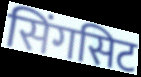
सिंगसिट